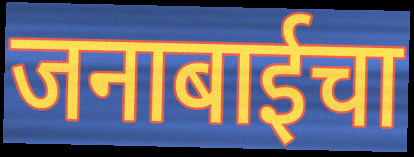
जनाबाईचा